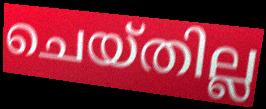
ചെയ്തില്ല